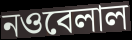
নওবেলাল